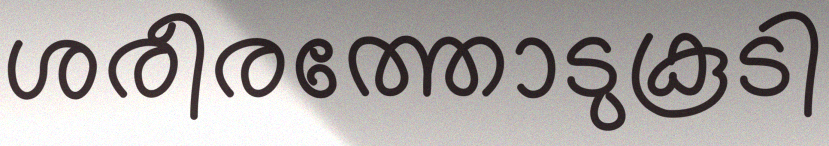
ശരീരത്തോടുകൂടി